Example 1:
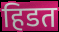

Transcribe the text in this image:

हिडत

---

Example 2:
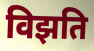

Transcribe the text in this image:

विझति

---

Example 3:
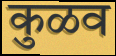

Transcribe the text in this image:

कुळव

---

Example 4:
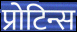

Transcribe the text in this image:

प्रोटिन्स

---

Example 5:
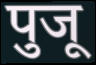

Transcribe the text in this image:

पुजू